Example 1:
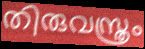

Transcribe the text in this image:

തിരുവസ്ത്രം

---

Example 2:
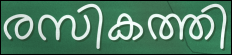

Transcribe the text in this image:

രസികത്തി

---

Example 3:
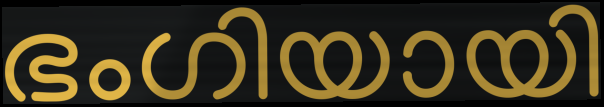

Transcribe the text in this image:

ഭംഗിയായി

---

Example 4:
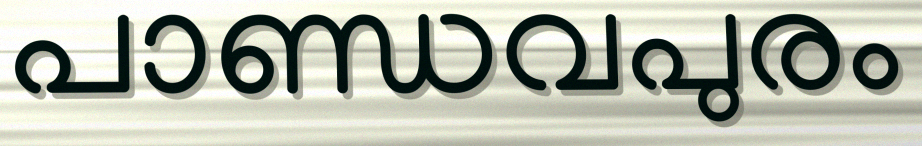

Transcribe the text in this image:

പാണ്ഡവപുരം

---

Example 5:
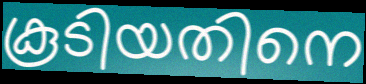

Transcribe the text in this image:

കൂടിയതിനെ